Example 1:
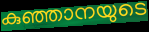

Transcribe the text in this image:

കുഞ്ഞാനയുടെ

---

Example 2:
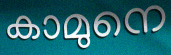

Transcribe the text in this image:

കാമുനെ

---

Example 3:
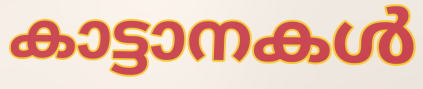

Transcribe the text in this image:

കാട്ടാനകൾ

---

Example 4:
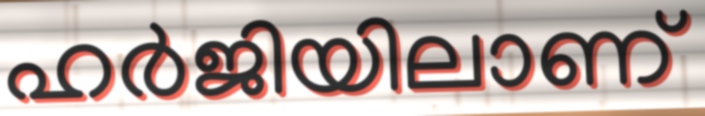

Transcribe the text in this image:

ഹർജിയിലാണ്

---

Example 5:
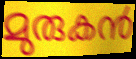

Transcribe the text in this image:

മുരുകൻ